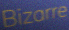
Bizarre